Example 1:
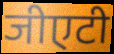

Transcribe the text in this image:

जीएटी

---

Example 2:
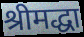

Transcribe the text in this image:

श्रीमद्धा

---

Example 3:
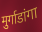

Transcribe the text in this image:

मुर्गाडांगा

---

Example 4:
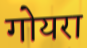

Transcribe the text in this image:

गोयरा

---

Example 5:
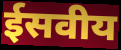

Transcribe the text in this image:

ईसवीय